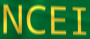
NCEI